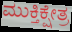
ಮುಕ್ತಿಕ್ಷೇತ್ರ